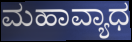
ಮಹಾವ್ಯಾಧ